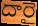
దారై